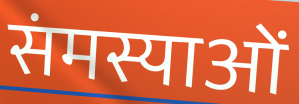
संमस्याओं